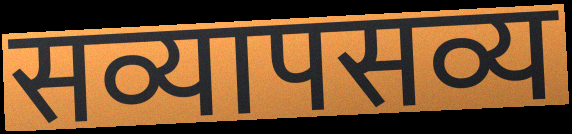
सव्यापसव्य